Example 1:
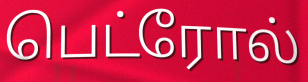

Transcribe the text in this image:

பெட்ரோல்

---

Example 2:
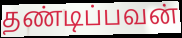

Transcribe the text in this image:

தண்டிப்பவன்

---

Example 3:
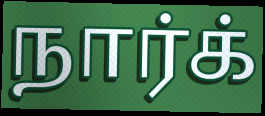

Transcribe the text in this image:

நார்க்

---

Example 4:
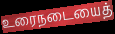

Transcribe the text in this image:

உரைநடையைத்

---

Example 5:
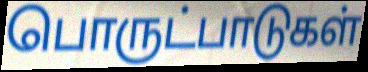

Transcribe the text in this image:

பொருட்பாடுகள்